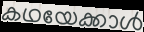
കഥയേക്കാൾ